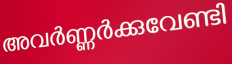
അവർണ്ണർക്കുവേണ്ടി